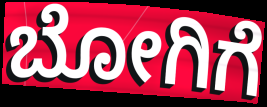
ಬೋಗಿಗೆ